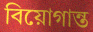
বিয়োগান্ত